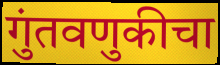
गुंतवणुकीचा